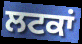
ਲਟਕਾਂ